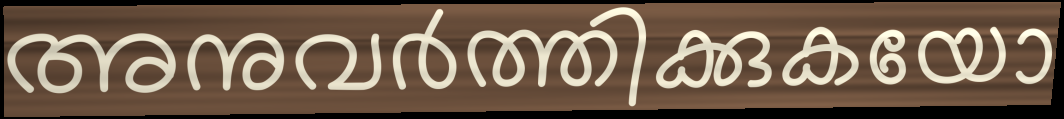
അനുവർത്തിക്കുകയോ